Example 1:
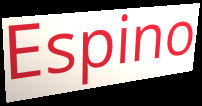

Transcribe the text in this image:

Espino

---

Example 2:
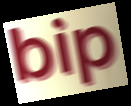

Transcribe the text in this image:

bip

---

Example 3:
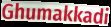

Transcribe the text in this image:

Ghumakkadi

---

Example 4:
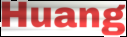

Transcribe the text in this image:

Huang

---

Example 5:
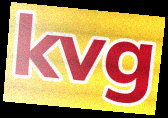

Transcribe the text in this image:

kvg